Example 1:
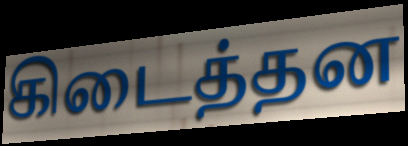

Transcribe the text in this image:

கிடைத்தன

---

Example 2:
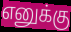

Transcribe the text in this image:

எனுக்கு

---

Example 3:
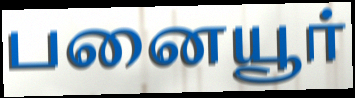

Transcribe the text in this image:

பனையூர்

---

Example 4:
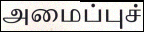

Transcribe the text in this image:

அமைப்புச்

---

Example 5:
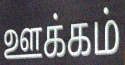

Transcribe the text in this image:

ஊக்கம்